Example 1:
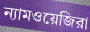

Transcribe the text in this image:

ন্যামওয়েজিরা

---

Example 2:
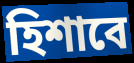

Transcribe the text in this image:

হিশাবে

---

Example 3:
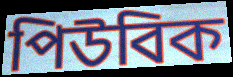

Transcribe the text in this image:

পিউবিক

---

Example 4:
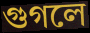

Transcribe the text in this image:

গুগলে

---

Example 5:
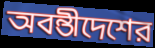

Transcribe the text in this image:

অবন্তীদেশের